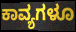
ಕಾವ್ಯಗಳೂ